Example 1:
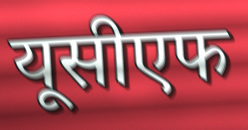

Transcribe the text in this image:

यूसीएफ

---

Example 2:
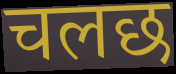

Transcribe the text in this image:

चलछ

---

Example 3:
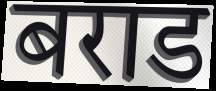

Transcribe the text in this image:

बराड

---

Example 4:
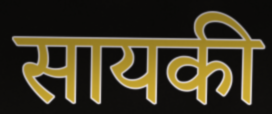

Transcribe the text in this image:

सायकी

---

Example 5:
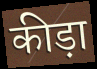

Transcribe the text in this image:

कीड़ा